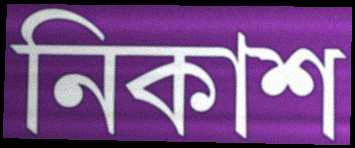
নিকাশ